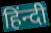
हिंन्दी